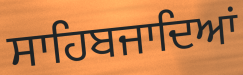
ਸਾਹਿਬਜਾਦਿਆਂ